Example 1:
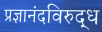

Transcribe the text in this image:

प्रज्ञानंदविरुद्ध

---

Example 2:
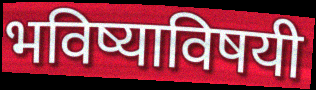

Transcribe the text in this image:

भविष्याविषयी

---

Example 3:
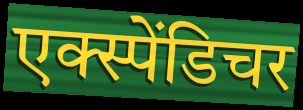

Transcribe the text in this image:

एक्स्पेंडिचर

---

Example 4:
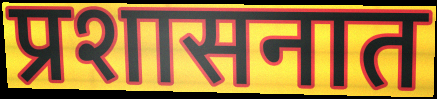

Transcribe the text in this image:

प्रशासनात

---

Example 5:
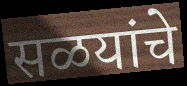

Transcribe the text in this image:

सळयांचे